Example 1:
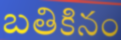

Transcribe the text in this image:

బతికినం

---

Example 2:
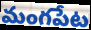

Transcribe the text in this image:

మంగపేట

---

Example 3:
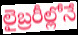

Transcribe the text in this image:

లైబ్రరీల్లోనే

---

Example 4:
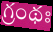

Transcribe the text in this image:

గ్రంథః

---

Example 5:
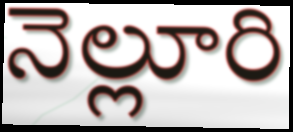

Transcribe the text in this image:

నెల్లూరి